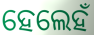
ହେଲେହଁ